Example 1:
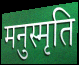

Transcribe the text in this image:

मनुस्मृति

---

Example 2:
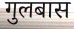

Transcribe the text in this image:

गुलबास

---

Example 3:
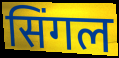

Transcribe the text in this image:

सिंगल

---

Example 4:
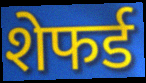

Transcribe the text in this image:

शेफर्ड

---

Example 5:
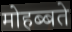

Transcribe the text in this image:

मोहब्बते